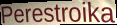
Perestroika